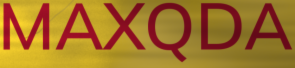
MAXQDA